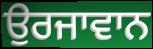
ਉਰਜਾਵਾਨ